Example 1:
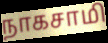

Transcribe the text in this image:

நாகசாமி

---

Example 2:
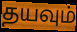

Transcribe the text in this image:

தயவும்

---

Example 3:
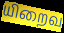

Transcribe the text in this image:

யிறைவ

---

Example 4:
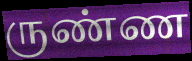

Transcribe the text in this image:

ருண்ண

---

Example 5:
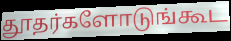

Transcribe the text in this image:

தூதர்களோடுங்கூட